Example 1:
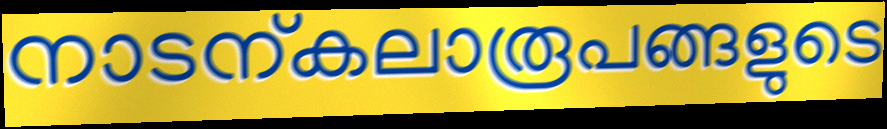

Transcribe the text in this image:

നാടന്കലാരൂപങ്ങളുടെ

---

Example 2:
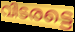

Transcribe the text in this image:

വിടരട്ടെ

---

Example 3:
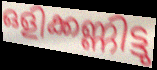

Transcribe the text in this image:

ഒളിക്കണ്ണിട്ടു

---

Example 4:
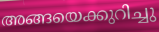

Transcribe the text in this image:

അങ്ങയെക്കുറിച്ചു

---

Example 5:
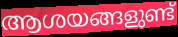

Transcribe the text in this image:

ആശയങ്ങളുണ്ട്